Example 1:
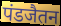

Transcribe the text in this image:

पंडजैतन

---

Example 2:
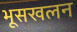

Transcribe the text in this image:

भूसखलन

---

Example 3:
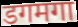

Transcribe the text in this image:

डगमगा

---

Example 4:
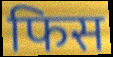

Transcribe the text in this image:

फिस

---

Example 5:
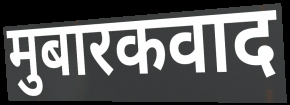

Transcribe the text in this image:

मुबारकवाद